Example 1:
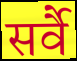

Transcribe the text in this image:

सर्वै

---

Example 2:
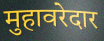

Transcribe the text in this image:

मुहावरेदार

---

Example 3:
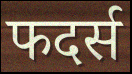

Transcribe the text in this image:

फदर्स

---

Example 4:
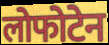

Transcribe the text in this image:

लोफोटेन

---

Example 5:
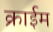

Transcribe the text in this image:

क्राईम